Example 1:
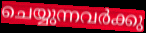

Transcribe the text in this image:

ചെയ്യുന്നവർക്കു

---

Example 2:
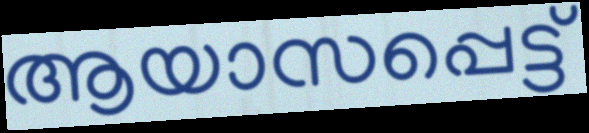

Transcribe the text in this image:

ആയാസപ്പെട്ട്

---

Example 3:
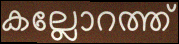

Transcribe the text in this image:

കല്ലോറത്ത്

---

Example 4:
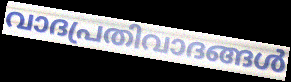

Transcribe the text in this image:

വാദപ്രതിവാദങ്ങൾ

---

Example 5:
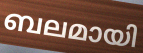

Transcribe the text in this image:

ബലമായി